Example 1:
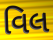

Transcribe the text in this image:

વિલ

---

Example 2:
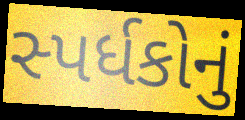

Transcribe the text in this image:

સ્પર્ધકોનું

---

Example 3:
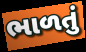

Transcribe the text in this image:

ભાળતું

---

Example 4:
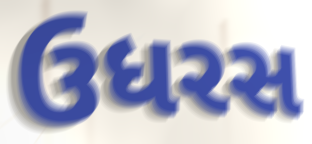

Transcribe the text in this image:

ઉધરસ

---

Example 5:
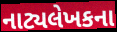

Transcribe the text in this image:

નાટ્યલેખકના